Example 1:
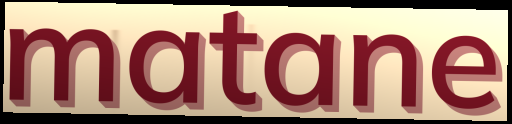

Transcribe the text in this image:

matane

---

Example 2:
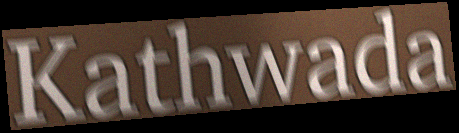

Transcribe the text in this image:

Kathwada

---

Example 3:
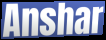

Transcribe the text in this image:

Anshar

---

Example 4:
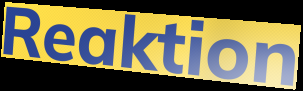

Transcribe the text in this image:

Reaktion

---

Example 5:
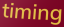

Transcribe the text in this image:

timing